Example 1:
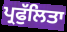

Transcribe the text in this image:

ਪ੍ਰਫੁੱਲਿਤਾ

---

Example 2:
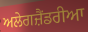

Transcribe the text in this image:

ਅਲੇਗਜ਼ੈਂਡਰੀਆ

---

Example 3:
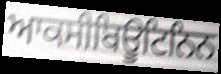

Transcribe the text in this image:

ਆਕਸੀਬਿਊਟਿਨਿਨ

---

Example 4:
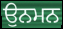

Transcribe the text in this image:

ਉਨਮਨ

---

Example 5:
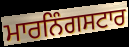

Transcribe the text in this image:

ਮਾਰਨਿੰਗਸਟਾਰ